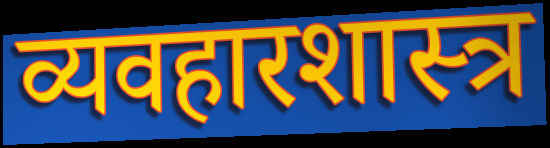
व्यवहारशास्त्र